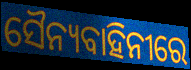
ସୈନ୍ଯବାହିନୀରେ